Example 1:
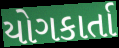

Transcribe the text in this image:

યોગકાર્તા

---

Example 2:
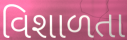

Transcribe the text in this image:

વિશાળતા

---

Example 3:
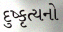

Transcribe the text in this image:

દુષ્કૃત્યનો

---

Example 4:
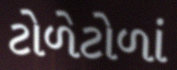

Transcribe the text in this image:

ટોળેટોળાં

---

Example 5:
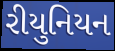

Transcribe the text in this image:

રીયુનિયન